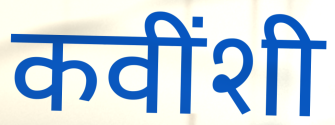
कवींशी